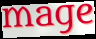
mage